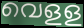
വെളള